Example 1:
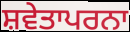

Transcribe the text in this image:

ਸ਼ਵੇਤਾਪਰਨਾ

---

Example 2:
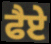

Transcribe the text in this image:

ਫੈਏ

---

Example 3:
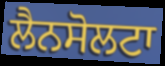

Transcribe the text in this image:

ਲੈਨਸੋਲਟਾ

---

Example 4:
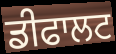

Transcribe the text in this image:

ਡੀਫਾਲਟ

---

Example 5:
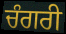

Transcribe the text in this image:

ਚੰਗਰੀ